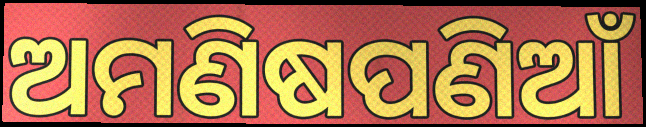
ଅମଣିଷପଣିଆଁ